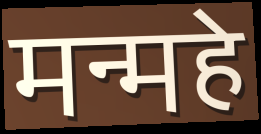
मन्महे